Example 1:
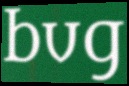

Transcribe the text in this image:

bug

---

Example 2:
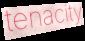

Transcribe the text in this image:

tenacity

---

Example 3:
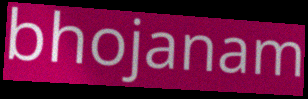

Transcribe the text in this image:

bhojanam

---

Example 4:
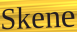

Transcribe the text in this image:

Skene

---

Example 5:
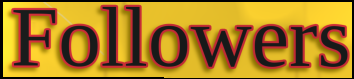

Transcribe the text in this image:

Followers